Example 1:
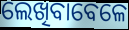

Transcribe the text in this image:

ଲେଖିବାବେଳେ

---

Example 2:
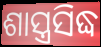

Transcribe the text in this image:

ଶାସ୍ତ୍ରସିଦ୍ଧ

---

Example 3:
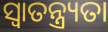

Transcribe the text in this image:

ସ୍ୱାତନ୍ତ୍ର୍ୟତା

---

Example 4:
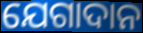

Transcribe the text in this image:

ଯେଗାଦାନ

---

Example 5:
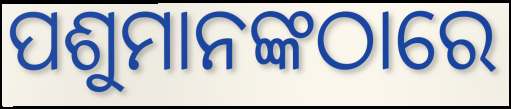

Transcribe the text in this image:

ପଶୁମାନଙ୍କଠାରେ